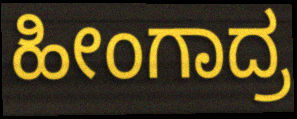
ಹೀಂಗಾದ್ರ